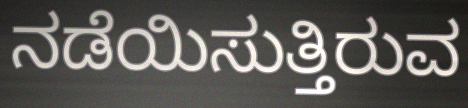
ನಡೆಯಿಸುತ್ತಿರುವ